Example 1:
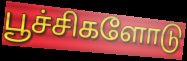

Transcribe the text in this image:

பூச்சிகளோடு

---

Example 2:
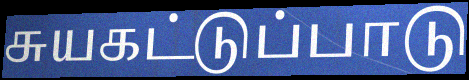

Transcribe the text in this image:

சுயகட்டுப்பாடு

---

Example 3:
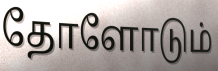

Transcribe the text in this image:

தோளோடும்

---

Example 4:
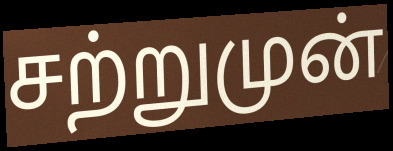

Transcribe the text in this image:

சற்றுமுன்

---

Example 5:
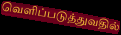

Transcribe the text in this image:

வெளிப்படுத்துவதில்